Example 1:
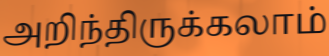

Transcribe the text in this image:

அறிந்திருக்கலாம்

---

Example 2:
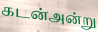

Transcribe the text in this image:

கடன்அன்று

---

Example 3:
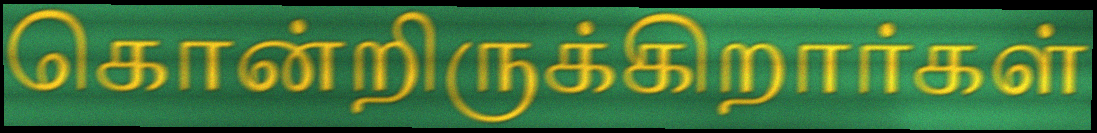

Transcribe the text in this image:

கொன்றிருக்கிறார்கள்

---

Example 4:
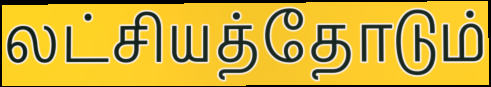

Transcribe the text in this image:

லட்சியத்தோடும்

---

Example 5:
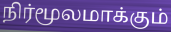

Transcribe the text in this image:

நிர்மூலமாக்கும்